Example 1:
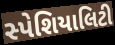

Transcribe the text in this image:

સ્પેશિયાલિટી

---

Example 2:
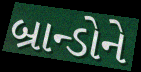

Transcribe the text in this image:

બ્રાન્ડોને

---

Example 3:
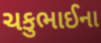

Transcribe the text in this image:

ચકુભાઈના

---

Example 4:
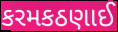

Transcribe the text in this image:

કરમકઠણાઈ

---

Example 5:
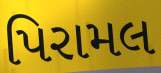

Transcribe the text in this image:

પિરામલ